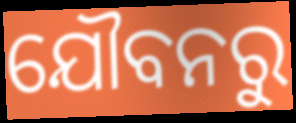
ଯୌବନରୁ